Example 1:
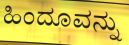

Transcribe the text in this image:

ಹಿಂದೂವನ್ನು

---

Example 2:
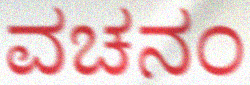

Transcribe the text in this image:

ವಚನಂ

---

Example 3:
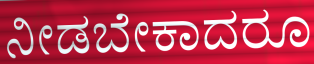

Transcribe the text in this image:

ನೀಡಬೇಕಾದರೂ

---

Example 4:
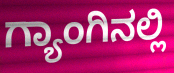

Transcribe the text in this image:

ಗ್ಯಾಂಗಿನಲ್ಲಿ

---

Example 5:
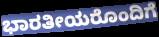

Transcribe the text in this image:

ಭಾರತೀಯರೊಂದಿಗೆ